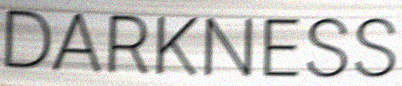
DARKNESS